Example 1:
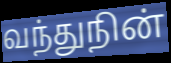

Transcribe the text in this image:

வந்துநின்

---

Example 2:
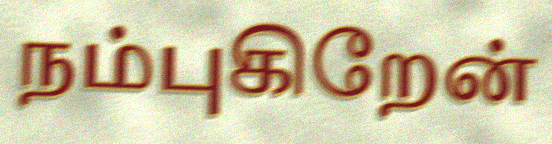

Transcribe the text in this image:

நம்புகிறேன்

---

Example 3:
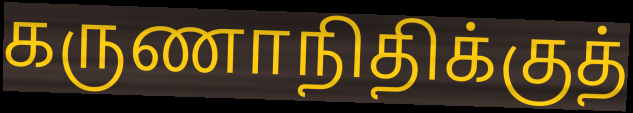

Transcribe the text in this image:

கருணாநிதிக்குத்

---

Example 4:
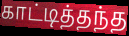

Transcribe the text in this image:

காட்டித்தந்த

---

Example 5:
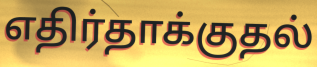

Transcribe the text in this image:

எதிர்தாக்குதல்